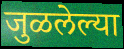
जुळलेल्या